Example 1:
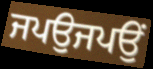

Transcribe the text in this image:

ਜਪਉਜਪਉਂ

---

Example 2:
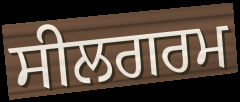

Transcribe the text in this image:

ਸੀਲਗਰਮ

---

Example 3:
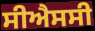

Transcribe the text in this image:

ਸੀਐਸਸੀ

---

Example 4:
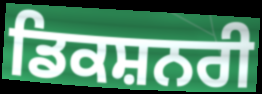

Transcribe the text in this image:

ਡਿਕਸ਼ਨਰੀ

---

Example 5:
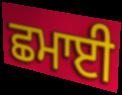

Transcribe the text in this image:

ਛਮਾਈ